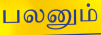
பலனும்